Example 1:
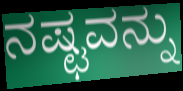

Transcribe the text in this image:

ನಷ್ಟವನ್ನು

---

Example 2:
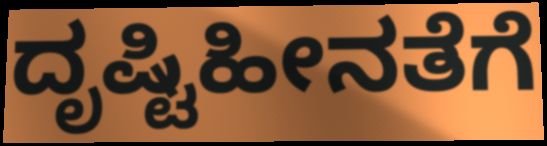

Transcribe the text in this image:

ದೃಷ್ಟಿಹೀನತೆಗೆ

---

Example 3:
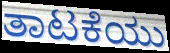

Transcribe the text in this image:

ತಾಟಕೆಯು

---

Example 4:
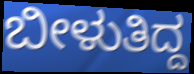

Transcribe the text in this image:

ಬೀಳುತಿದ್ದ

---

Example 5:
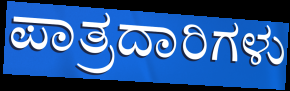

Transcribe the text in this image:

ಪಾತ್ರದಾರಿಗಳು